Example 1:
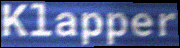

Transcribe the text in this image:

Klapper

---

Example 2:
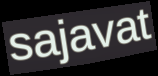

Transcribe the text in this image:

sajavat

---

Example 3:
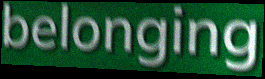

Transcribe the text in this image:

belonging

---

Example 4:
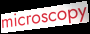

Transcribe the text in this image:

microscopy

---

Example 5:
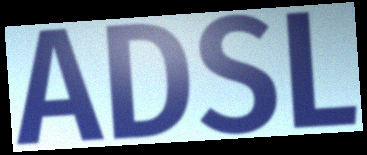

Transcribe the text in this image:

ADSL